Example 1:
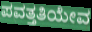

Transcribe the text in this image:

ಪವತ್ತತಿಯೇವ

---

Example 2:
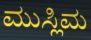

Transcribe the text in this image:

ಮುಸ್ಲಿಮ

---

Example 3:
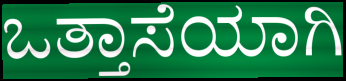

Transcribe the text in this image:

ಒತ್ತಾಸೆಯಾಗಿ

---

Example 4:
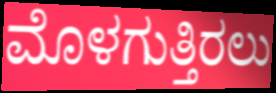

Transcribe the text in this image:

ಮೊಳಗುತ್ತಿರಲು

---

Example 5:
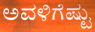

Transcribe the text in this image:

ಅವಳಿಗೆಷ್ಟು